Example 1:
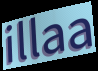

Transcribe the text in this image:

illaa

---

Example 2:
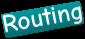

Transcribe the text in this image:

Routing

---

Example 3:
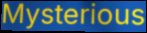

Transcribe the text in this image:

Mysterious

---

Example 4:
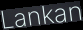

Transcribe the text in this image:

Lankan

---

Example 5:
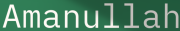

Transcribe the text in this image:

Amanullah